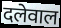
दलेवाल